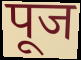
पूज